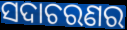
ସଦାଚରଣର